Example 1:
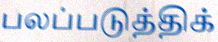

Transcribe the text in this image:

பலப்படுத்திக்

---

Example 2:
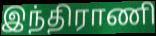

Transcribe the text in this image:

இந்திராணி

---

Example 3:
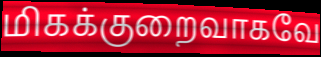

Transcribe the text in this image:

மிகக்குறைவாகவே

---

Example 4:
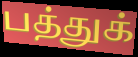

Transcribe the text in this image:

பத்துக்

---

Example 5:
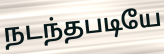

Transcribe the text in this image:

நடந்தபடியே